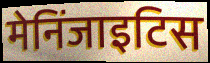
मेनिंजाइटिस